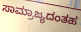
ಸಾಮ್ರಾಜ್ಯದಂತಹ